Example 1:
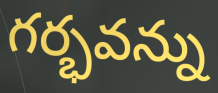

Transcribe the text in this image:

గర్భవన్ను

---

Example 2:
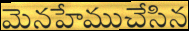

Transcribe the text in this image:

మెనహేముచేసిన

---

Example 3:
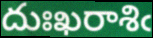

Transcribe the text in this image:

దుఃఖరాశిఁ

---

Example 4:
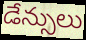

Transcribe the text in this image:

డేన్సులు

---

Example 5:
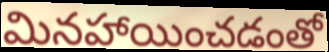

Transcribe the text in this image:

మినహాయించడంతో